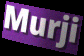
Murji